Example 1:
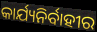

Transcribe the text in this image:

କାର୍ଯ୍ୟନିର୍ବାହୀର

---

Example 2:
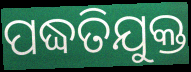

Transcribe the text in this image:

ପଦ୍ଧତିଯୁକ୍ତ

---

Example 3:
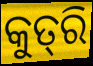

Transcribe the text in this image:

କୁତ୍‌ରି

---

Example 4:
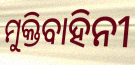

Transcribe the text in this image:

ମୁକ୍ତିବାହିନୀ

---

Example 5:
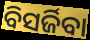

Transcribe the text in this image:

ବିସର୍ଜିବା